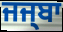
ਜਜ੍ਬਾ